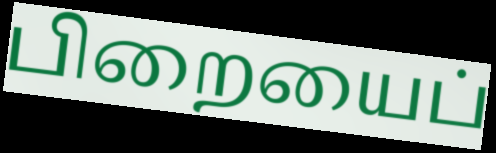
பிறையைப்